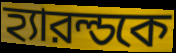
হ্যারল্ডকে